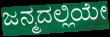
ಜನ್ಮದಲ್ಲಿಯೇ